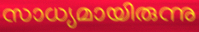
സാധ്യമായിരുന്നു